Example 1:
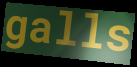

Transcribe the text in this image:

galls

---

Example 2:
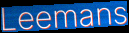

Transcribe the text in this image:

Leemans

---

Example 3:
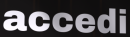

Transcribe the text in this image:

accedi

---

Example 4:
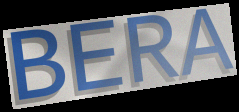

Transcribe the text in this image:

BERA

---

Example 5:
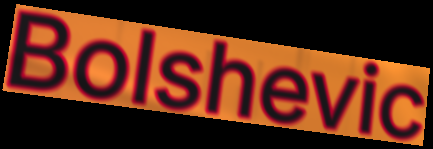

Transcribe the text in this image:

Bolshevic